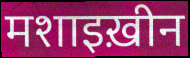
मशाइख़ीन